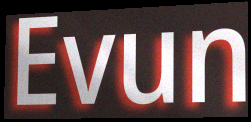
Evun